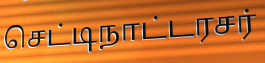
செட்டிநாட்டரசர்